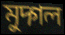
মুদ্গল